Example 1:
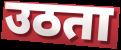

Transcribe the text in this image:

उठता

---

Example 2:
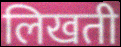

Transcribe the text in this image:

लिखती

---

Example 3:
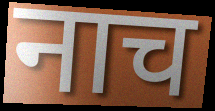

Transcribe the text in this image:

नाच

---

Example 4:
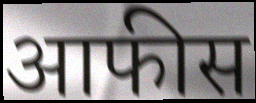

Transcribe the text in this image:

आफीस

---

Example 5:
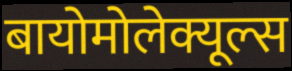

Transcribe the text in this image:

बायोमोलेक्यूल्स